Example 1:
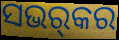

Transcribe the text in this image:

ସଭର୍‌କର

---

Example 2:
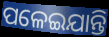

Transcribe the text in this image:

ପଳେଇଯାନ୍ତି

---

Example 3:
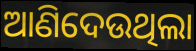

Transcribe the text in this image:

ଆଣିଦେଉଥିଲା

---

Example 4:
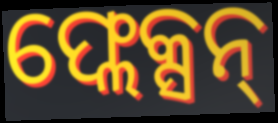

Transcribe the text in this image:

ଫ୍ଲେକ୍ସନ୍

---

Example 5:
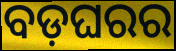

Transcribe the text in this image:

ବଡ଼ଘରର